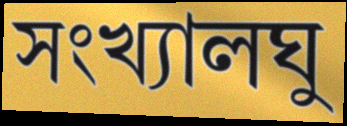
সংখ্যালঘু